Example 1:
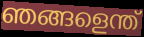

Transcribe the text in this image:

ഞങ്ങളെന്ത്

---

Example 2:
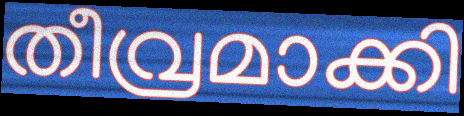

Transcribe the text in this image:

തീവ്രമാക്കി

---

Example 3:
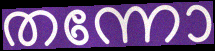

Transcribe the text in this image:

തന്നോ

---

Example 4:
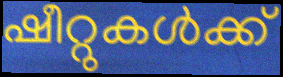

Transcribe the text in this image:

ഷീറ്റുകൾക്ക്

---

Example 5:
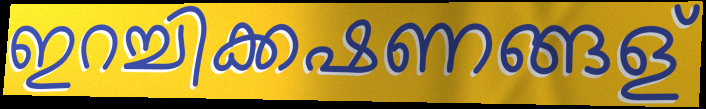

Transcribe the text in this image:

ഇറച്ചിക്കഷണങ്ങള്